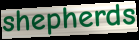
shepherds